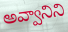
అవ్వానిని